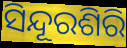
ସିନ୍ଦୂରଶିରି